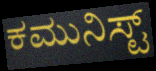
ಕಮುನಿಸ್ಟ್